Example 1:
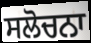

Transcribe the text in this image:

ਸਲੋਚਨਾ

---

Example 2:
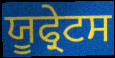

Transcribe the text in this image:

ਯੂਫ੍ਰੇਟਸ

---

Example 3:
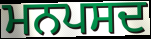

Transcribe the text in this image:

ਮਨਪਸਦ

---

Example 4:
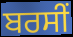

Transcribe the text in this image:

ਬਰਸੀਂ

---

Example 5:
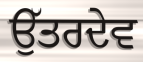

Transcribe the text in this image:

ਉੱਤਰਦੇਵ